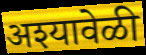
अश्यावेळी